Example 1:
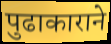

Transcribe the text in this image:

पुढाकाराने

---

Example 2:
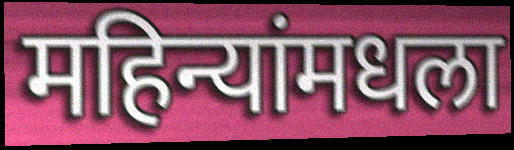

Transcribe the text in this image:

महिन्यांमधला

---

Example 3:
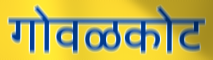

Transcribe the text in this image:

गोवळकोट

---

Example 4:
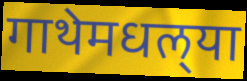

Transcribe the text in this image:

गाथेमधल्या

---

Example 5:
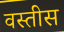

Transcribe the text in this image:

वस्तीस